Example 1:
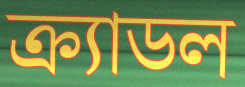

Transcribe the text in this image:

ক্র্যাডল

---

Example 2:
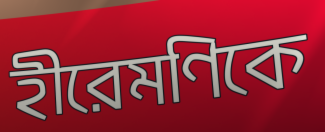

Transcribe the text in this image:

হীরেমণিকে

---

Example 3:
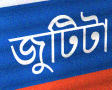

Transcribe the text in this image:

জুটিটা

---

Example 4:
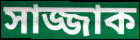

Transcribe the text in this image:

সাজ্জাক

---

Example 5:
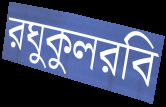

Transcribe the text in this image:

রঘুকুলরবি